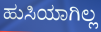
ಹುಸಿಯಾಗಿಲ್ಲ